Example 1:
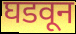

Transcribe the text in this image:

घडवून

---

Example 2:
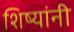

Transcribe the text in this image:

शिष्यांनी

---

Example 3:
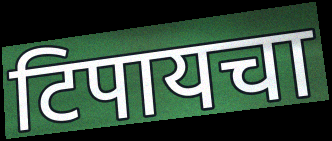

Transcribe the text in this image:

टिपायचा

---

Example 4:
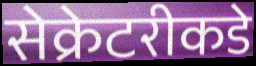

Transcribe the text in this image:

सेक्रेटरीकडे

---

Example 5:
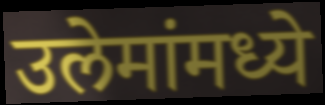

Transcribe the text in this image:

उलेमांमध्ये